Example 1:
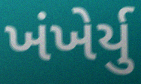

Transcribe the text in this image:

ખંખેર્યુ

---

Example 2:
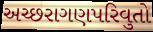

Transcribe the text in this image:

અચ્છરાગણપરિવુતો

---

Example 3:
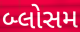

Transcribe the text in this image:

બ્લોસમ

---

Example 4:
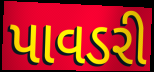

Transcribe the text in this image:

પાવડરી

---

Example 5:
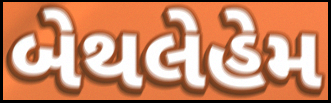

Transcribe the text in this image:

બેથલેહેમ